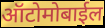
ऑटोमोबाईल